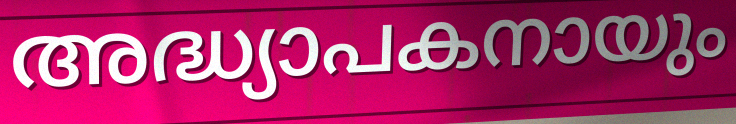
അദ്ധ്യാപകനായും